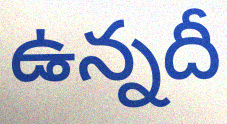
ఉన్నదీ